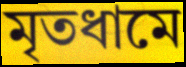
মৃতধামে